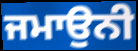
ਜਮਾਉਨੀ